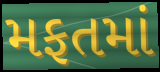
મફતમાં